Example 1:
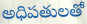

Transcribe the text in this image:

అధిపతులతో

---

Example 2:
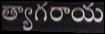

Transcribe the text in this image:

త్యాగరాయ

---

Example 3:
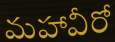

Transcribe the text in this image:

మహావీరో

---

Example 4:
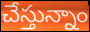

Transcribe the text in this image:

చేస్తున్నాం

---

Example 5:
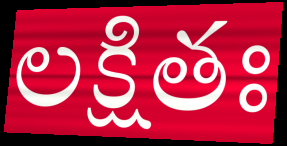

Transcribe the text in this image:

లక్షితః